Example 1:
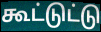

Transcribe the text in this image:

கூட்டுட்டு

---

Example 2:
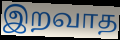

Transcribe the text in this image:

இறவாத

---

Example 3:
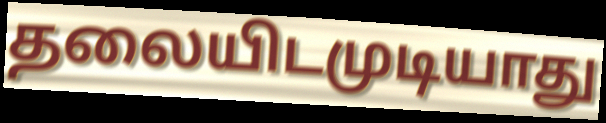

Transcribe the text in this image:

தலையிடமுடியாது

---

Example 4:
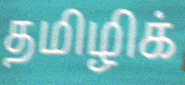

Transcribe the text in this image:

தமிழிக்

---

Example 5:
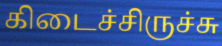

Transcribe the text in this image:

கிடைச்சிருச்சு